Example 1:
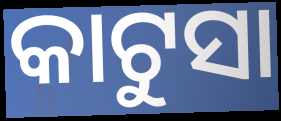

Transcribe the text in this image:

କାଟୁସା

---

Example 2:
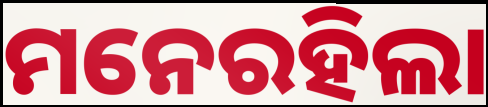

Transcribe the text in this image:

ମନେରହିଲା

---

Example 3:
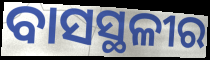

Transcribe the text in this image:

ବାସସ୍ଥଳୀର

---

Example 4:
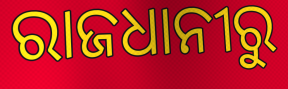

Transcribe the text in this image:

ରାଜଧାନୀରୁ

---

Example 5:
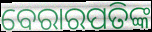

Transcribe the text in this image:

ବେରାରପତିଙ୍କ